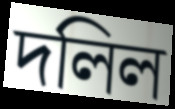
দলিল